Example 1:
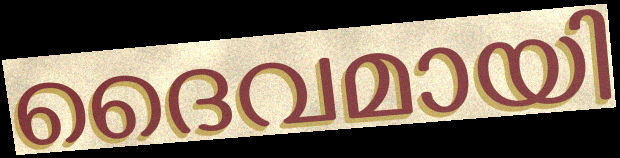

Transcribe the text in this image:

ദൈവമായി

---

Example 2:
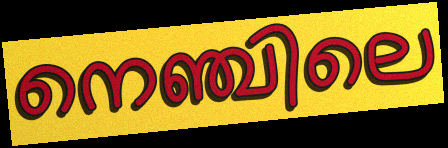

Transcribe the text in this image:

നെഞ്ചിലെ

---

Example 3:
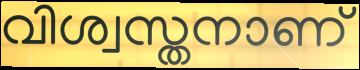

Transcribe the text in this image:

വിശ്വസ്തനാണ്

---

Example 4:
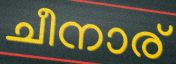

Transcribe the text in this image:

ചീനാര്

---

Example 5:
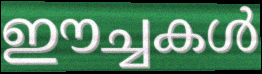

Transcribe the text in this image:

ഈച്ചകൾ